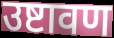
उष्टावण